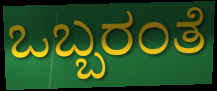
ಒಬ್ಬರಂತೆ